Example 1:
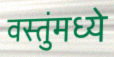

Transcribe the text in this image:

वस्तुंमध्ये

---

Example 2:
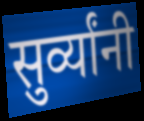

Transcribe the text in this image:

सुर्व्यांनी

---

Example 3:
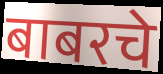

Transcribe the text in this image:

बाबरचे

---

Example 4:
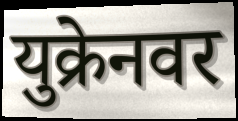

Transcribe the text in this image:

युक्रेनवर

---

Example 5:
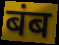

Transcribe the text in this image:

बंब